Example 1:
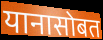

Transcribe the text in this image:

यानासोबत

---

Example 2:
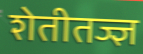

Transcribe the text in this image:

शेतीतज्ज्ञ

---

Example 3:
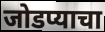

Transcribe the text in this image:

जोडप्याचा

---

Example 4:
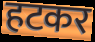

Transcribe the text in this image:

हटकर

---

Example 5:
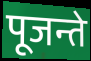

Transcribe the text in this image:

पूजन्ते